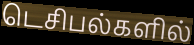
டெசிபல்களில்